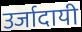
उर्जादायी